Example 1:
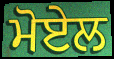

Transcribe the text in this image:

ਮੋਏਲ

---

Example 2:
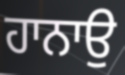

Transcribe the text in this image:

ਹਾਨਾਉ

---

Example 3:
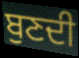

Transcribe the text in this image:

ਬੁਣਦੀ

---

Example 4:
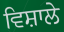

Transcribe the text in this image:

ਵਿਸ਼ਾਲੇ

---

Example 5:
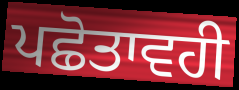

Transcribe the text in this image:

ਪਛੋਤਾਵਹੀ